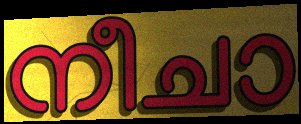
നീചാ